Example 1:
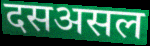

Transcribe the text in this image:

दसअसल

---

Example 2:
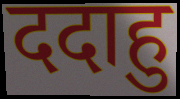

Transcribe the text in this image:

ददाहु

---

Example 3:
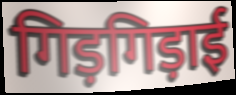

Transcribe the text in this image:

गिड़गिड़ाई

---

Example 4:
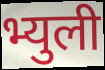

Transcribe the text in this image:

भ्युली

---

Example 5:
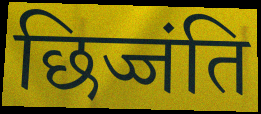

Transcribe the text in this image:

छिज्जंति